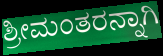
ಶ್ರೀಮಂತರನ್ನಾಗಿ